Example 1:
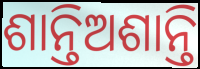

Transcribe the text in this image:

ଶାନ୍ତିଅଶାନ୍ତି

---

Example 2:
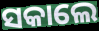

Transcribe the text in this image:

ସକାଲେ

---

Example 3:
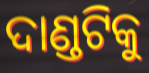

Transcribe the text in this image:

ଦାଣ୍ଡଟିକୁ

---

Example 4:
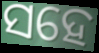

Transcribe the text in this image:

ସହେ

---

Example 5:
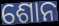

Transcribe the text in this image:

ଶୋନ